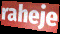
raheje